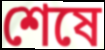
শেষে